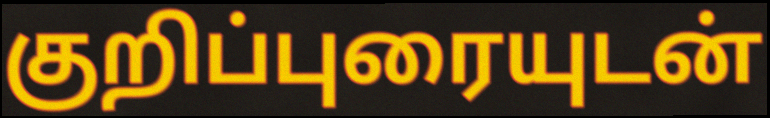
குறிப்புரையுடன்